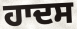
ਹਾਦਸ